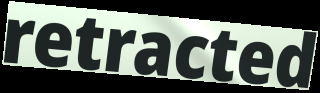
retracted